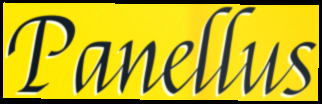
Panellus